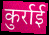
कुर्राई